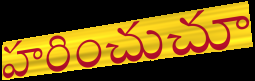
హరించుచూ